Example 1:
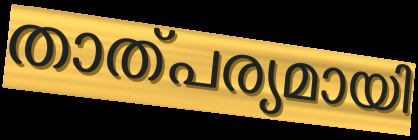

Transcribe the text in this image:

താത്പര്യമായി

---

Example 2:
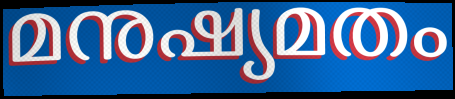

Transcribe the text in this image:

മനുഷ്യമതം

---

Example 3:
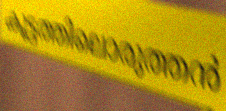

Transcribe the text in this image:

കൂട്ടത്തിലൊരുത്തൻ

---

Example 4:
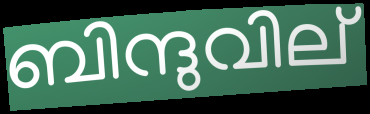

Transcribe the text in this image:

ബിന്ദുവില്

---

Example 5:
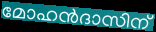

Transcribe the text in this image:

മോഹൻദാസിന്